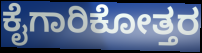
ಕೈಗಾರಿಕೋತ್ತರ